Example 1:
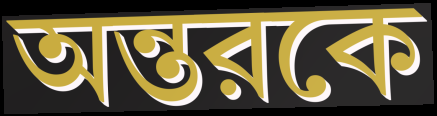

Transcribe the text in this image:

অন্তরকে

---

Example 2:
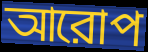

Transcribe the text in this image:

আরোপ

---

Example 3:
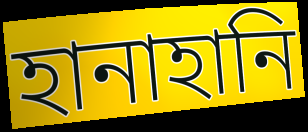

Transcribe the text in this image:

হানাহানি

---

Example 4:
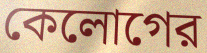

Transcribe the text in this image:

কেলোগের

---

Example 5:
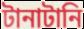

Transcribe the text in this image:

টানাটানি